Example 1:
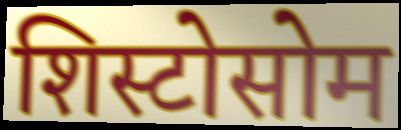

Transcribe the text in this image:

शिस्टोसोम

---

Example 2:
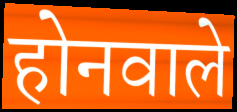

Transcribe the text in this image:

होनवाले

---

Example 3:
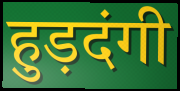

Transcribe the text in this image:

हुड़दंगी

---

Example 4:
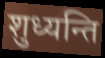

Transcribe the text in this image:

शुध्यन्ति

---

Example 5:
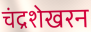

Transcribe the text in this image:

चंद्रशेखरन